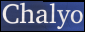
Chalyo